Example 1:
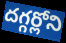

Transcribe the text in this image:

దగ్గర్లోని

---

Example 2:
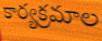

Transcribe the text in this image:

కార్యక్రమాల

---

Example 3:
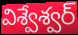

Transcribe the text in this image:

విశ్వేశ్వర్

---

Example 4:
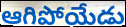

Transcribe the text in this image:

ఆగిపోయేడు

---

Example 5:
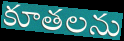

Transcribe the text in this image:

కూతలను